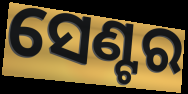
ସେଣ୍ଟର